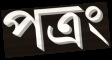
পত্রং